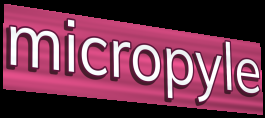
micropyle